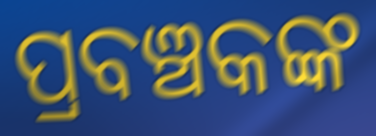
ପ୍ରବଞ୍ଚକଙ୍କ